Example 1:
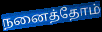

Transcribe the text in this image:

நனைத்தோம்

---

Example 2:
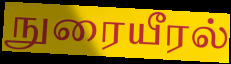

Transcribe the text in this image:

நுரையீரல்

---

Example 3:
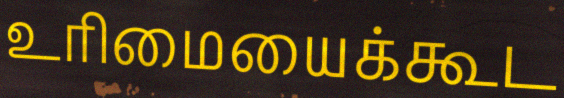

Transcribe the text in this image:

உரிமையைக்கூட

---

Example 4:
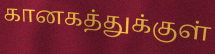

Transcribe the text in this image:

கானகத்துக்குள்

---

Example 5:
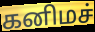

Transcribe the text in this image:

கனிமச்